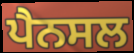
ਪੈਨਸਲ